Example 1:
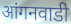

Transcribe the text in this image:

आंगनवाडी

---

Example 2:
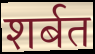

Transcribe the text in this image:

शर्बत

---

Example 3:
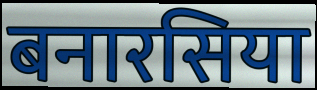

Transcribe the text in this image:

बनारसिया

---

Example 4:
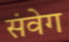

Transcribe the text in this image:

संवेग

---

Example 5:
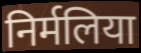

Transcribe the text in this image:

निर्मलिया